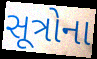
સૂત્રોના